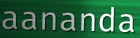
aananda